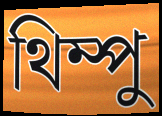
থিম্পু